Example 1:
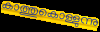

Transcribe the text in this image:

കാത്തുകൊള്ളുന്നു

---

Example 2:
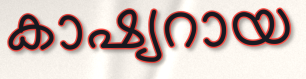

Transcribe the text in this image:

കാഷ്യറായ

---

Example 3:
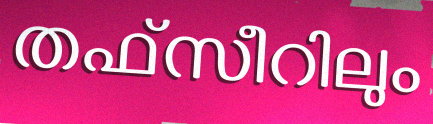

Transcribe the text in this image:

തഫ്സീറിലും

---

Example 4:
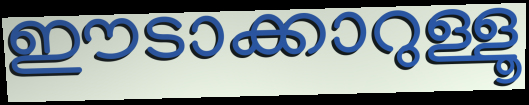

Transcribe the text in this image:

ഈടാക്കാറുള്ളൂ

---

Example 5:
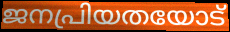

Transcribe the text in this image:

ജനപ്രിയതയോട്